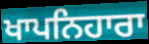
ਖਾਪਨਿਹਾਰਾ